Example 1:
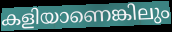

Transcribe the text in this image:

കളിയാണെങ്കിലും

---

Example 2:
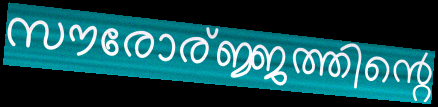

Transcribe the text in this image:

സൗരോര്ജ്ജത്തിന്റെ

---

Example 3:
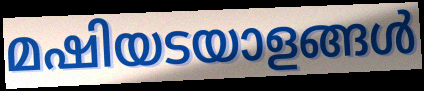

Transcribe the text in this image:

മഷിയടയാളങ്ങൾ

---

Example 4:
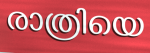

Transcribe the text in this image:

രാത്രിയെ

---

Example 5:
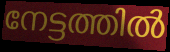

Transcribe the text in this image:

നേട്ടത്തിൽ